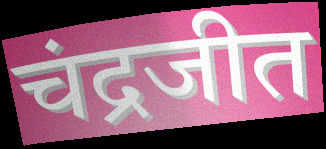
चंद्रजीत